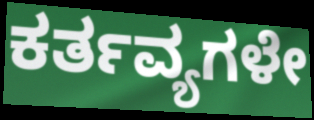
ಕರ್ತವ್ಯಗಳೇ